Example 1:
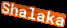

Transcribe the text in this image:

Shalaka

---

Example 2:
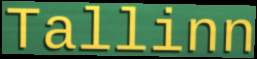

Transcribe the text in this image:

Tallinn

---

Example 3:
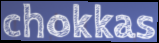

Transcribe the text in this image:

chokkas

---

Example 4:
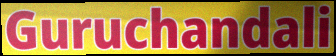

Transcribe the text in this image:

Guruchandali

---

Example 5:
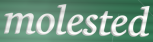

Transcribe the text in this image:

molested